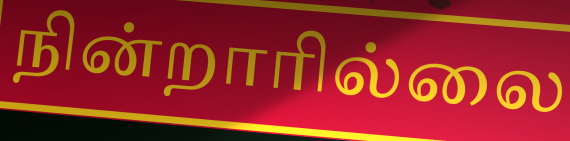
நின்றாரில்லை